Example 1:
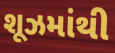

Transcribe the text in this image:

શૂઝમાંથી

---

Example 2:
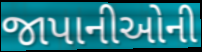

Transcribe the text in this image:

જાપાનીઓની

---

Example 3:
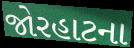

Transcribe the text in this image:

જોરહાટના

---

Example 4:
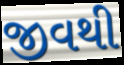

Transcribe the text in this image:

જીવથી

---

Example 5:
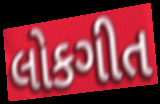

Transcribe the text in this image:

લોકગીત